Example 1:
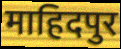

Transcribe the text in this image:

माहिदपुर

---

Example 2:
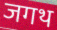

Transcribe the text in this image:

जगथ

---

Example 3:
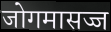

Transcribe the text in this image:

जोगमासज्ज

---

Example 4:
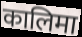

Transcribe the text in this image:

कालिमा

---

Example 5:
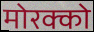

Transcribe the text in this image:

मोरक्को